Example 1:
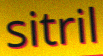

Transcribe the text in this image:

sitril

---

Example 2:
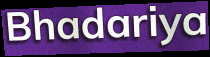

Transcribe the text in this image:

Bhadariya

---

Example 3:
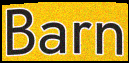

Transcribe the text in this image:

Barn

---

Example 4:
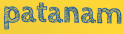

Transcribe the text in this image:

patanam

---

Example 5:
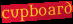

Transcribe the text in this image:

cupboard